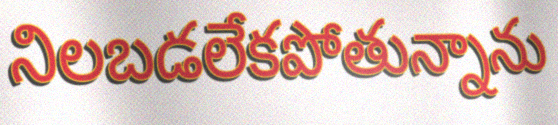
నిలబడలేకపోతున్నాను